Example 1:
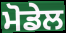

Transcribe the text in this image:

ਮੋਡੇਲ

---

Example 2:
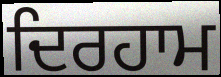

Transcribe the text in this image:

ਦਿਰਹਾਮ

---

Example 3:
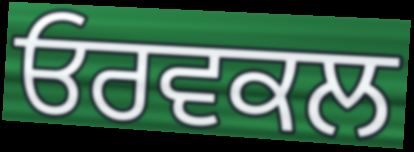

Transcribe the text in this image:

ਓਰਵਕਲ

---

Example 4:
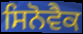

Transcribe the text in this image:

ਸਿਨੋਵੈਕ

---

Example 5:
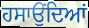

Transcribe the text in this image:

ਹਸਾਉਂਦਿਆਂ